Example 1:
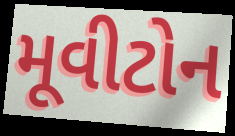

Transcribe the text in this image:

મૂવીટોન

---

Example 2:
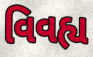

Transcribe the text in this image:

વિવહ્ય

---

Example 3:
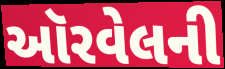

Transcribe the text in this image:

ઑરવેલની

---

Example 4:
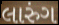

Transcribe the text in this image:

લારુંગ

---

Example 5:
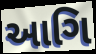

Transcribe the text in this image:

આગિ